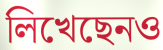
লিখেছেনও